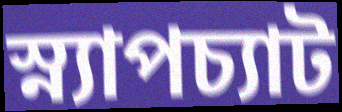
স্ন্যাপচ্যাট